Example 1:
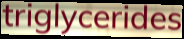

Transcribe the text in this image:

triglycerides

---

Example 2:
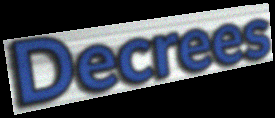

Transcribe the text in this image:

Decrees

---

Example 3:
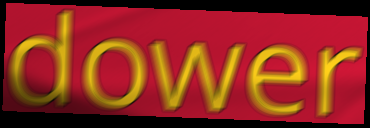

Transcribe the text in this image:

dower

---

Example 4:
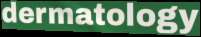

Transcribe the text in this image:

dermatology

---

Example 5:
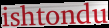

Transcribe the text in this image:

ishtondu